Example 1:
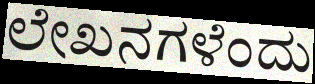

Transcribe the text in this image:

ಲೇಖನಗಳೆಂದು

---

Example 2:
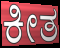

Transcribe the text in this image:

ಕೀತ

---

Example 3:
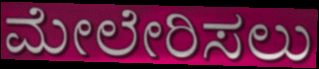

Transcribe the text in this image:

ಮೇಲೇರಿಸಲು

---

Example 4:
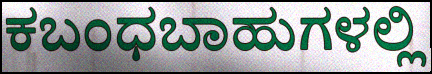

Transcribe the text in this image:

ಕಬಂಧಬಾಹುಗಳಲ್ಲಿ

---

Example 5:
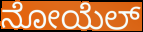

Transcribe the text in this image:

ನೋಯೆಲ್